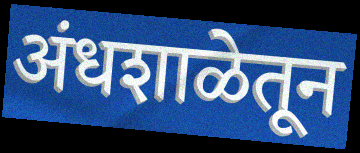
अंधशाळेतून